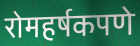
रोमहर्षकपणे